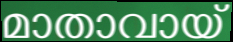
മാതാവായ്